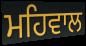
ਮਹਿਵਾਲ